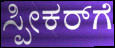
ಸ್ಪೀಕರ್‌ಗೆ